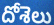
దోశెలు